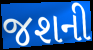
જશની